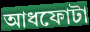
আধফোটা